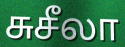
சுசீலா